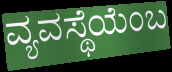
ವ್ಯವಸ್ಥೆಯೆಂಬ